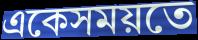
একেসময়তে